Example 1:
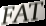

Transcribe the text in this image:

FAT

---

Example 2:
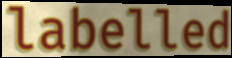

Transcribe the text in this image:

labelled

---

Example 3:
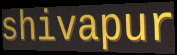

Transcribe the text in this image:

shivapur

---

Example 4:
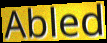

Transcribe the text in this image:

Abled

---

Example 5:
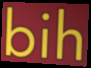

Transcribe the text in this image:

bih